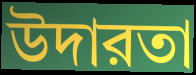
উদারতা